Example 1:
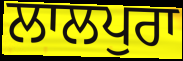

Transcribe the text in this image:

ਲਾਲਪੁਰਾ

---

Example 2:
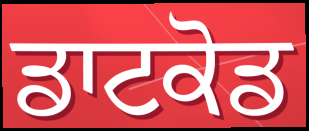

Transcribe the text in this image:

ਡਾਟਕੋਡ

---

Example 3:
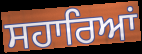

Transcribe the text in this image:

ਸਹਾਰਿਆਂ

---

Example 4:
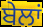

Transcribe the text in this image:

ਬੇਲਾਂ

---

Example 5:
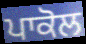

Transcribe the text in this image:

ਪਾਕੋਲ